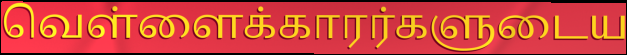
வெள்ளைக்காரர்களுடைய